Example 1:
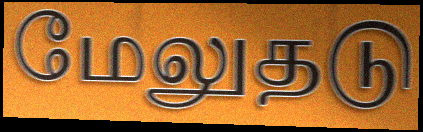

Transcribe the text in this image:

மேலுதடு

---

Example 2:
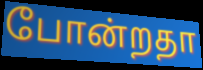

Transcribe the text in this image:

போன்றதா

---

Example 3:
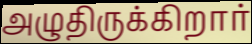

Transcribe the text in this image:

அழுதிருக்கிறார்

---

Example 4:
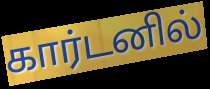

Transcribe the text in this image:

கார்டனில்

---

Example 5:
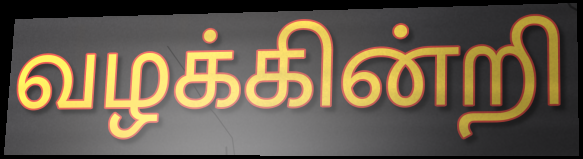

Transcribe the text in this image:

வழக்கின்றி